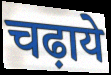
चढ़ाये